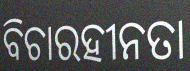
ବିଚାରହୀନତା